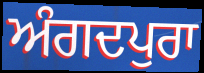
ਅੰਗਦਪੁਰਾ